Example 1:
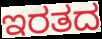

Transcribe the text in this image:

ಇರತದ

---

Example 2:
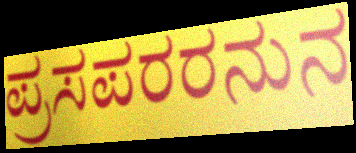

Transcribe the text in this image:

ಪ್ರಸಪರರನುನ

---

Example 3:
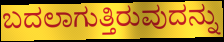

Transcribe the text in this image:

ಬದಲಾಗುತ್ತಿರುವುದನ್ನು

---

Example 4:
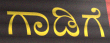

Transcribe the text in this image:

ಗಾಡಿಗೆ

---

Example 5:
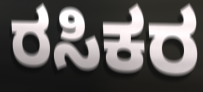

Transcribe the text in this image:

ರಸಿಕರ